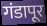
गंडापूर